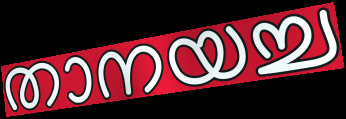
താനയച്ച